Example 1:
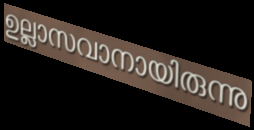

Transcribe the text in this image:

ഉല്ലാസവാനായിരുന്നു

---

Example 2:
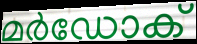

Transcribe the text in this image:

മർഡോക്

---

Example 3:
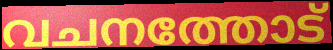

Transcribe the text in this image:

വചനത്തോട്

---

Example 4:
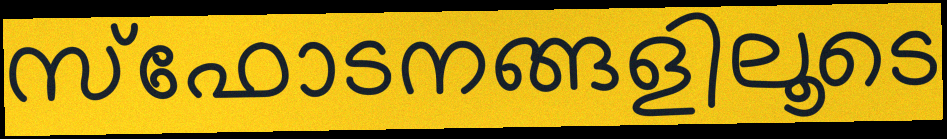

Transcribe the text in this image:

സ്ഫോടനങ്ങളിലൂടെ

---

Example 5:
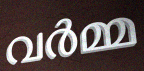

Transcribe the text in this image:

വർമ്മ